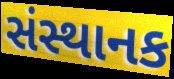
સંસ્થાનક